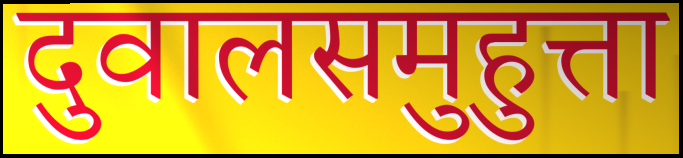
दुवालसमुहुत्ता